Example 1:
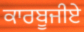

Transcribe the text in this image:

ਕਾਰਬੂਜੀਏ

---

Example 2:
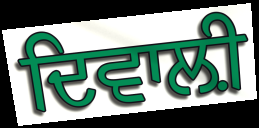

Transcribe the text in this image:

ਦਿਵਾਲ਼ੀ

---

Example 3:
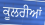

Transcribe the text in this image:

ਕੂਲਰੀਆਂ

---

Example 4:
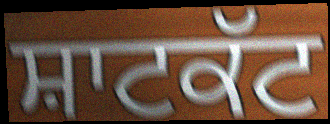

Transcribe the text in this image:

ਸ਼ਾਟਕੱਟ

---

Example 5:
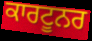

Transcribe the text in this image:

ਕਾਰਟੂਨਰ